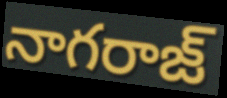
నాగరాజ్